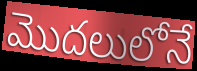
మొదలులోనే